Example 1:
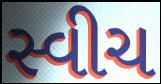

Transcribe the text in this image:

સ્વીચ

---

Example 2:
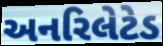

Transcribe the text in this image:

અનરિલેટેડ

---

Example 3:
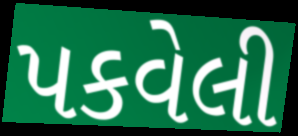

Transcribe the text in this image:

પકવેલી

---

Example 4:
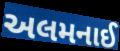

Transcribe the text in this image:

અલમનાઈ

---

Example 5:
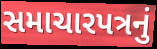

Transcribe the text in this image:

સમાચારપત્રનું